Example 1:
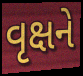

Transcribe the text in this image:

વૃક્ષને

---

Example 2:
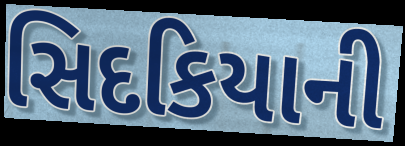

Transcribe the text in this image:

સિદકિયાની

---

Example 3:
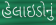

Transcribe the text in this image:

હેલાઇડોનું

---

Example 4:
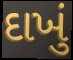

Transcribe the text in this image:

દાખું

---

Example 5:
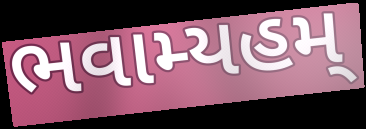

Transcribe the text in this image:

ભવામ્યહમ્